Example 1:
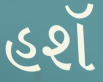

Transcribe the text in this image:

હશૅ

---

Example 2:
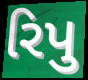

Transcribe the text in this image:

રિપુ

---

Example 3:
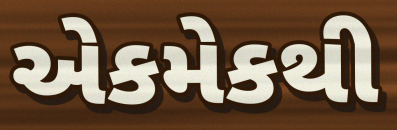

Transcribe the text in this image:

એકમેકથી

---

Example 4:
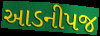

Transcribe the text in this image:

આડનીપજ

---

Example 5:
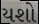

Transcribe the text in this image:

યશો